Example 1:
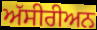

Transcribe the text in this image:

ਅੱਸੀਰੀਅਨ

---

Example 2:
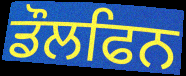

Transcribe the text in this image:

ਡੌਲਫਿਨ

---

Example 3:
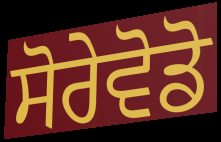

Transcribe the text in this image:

ਸੋਰੇਵੋਡੋ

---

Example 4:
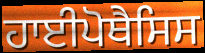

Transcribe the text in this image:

ਹਾਈਪੋਥੈਸਿਸ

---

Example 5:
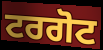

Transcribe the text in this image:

ਟਰਗੋਟ